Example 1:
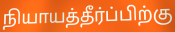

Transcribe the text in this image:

நியாயத்தீர்ப்பிற்கு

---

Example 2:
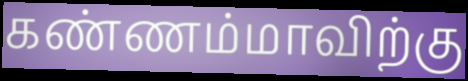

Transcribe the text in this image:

கண்ணம்மாவிற்கு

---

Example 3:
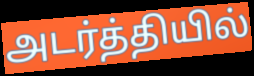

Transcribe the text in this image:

அடர்த்தியில்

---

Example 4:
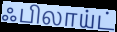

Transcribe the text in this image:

ஃபிலாய்ட்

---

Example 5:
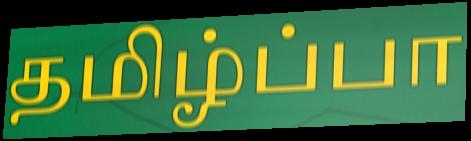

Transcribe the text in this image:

தமிழ்ப்பா